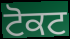
ਟੋਕਟ